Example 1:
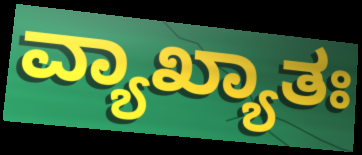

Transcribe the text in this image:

ವ್ಯಾಖ್ಯಾತಃ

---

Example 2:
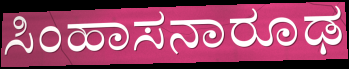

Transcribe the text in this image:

ಸಿಂಹಾಸನಾರೂಢ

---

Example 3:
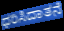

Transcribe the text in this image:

ಧರಿಸಿದಾತನೆ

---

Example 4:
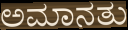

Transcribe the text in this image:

ಅಮಾನತು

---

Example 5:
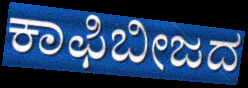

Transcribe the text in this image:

ಕಾಫಿಬೀಜದ